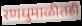
रणधुमाळीतही